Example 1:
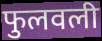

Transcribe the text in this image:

फुलवली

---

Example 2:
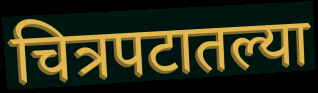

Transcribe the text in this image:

चित्रपटातल्या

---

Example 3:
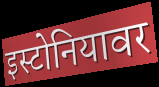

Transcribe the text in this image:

इस्टोनियावर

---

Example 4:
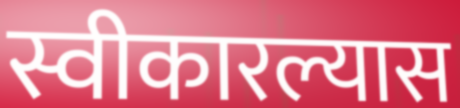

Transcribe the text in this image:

स्वीकारल्यास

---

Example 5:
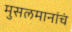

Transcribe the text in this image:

मुसलमानांचं